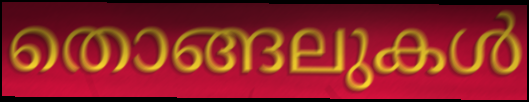
തൊങ്ങലുകൾ